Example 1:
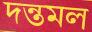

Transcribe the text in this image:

দন্তমল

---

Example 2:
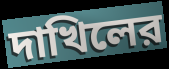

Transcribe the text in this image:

দাখিলের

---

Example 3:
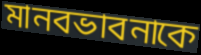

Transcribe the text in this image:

মানবভাবনাকে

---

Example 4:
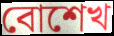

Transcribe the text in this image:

বোশেখ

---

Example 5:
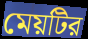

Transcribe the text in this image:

মেয়টির